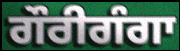
ਗੌਰੀਗੰਗਾ